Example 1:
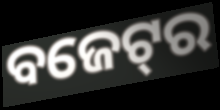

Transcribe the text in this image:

ବଜେଟ୍‌ର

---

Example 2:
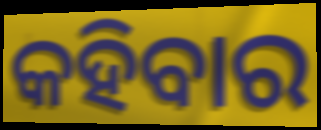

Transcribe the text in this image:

କହିବାର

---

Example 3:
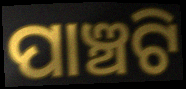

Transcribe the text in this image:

ପାଞ୍ଚଟି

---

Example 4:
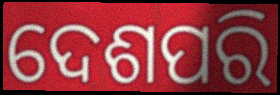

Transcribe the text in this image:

ଦେଶପରି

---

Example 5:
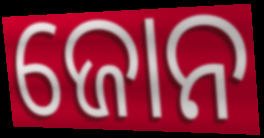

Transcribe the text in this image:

ଜୋନ